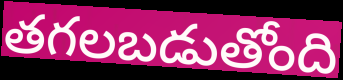
తగలబడుతోంది